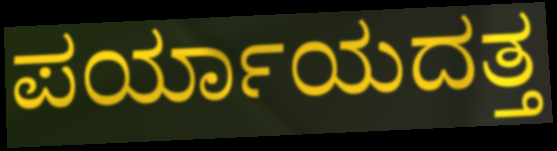
ಪರ್ಯಾಯದತ್ತ